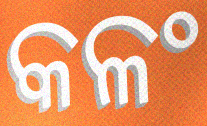
କଳଂ